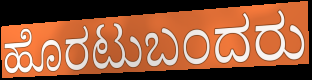
ಹೊರಟುಬಂದರು